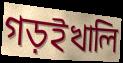
গড়ইখালি